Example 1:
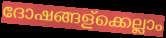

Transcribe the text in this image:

ദോഷങ്ങള്ക്കെല്ലാം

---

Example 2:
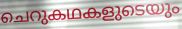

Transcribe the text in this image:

ചെറുകഥകളുടെയും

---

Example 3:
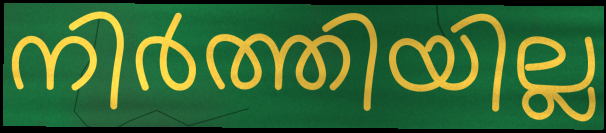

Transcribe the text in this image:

നിർത്തിയില്ല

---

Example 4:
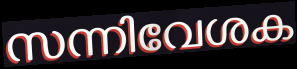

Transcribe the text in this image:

സന്നിവേശക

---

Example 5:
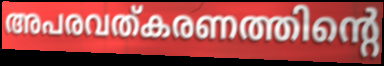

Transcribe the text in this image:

അപരവത്കരണത്തിന്റെ